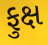
ફુક્ષ